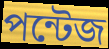
পন্টেজ